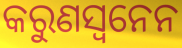
କରୁଣସ୍ଵନେନ